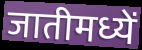
जातीमध्यें